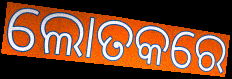
ଲୋତକରେ